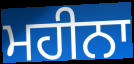
ਮਹੀਨਾ